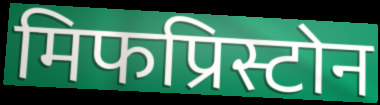
मिफप्रिस्टोन